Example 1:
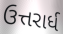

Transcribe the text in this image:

ઉત્તરાર્ધ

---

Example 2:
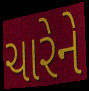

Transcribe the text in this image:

ચારેને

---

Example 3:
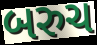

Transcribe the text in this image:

બરુચ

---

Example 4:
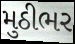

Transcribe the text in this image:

મુઠીભર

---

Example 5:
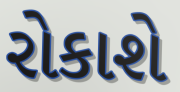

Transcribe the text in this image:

રોકાશે